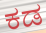
ಕಡ